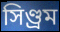
সিণ্ড্ৰম